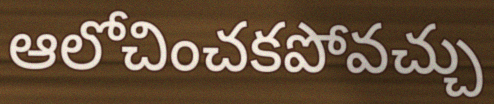
ఆలోచించకపోవచ్చు